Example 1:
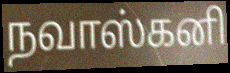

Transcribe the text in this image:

நவாஸ்கனி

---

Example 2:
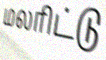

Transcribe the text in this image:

மலரிட்டு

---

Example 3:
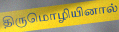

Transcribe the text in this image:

திருமொழியினால்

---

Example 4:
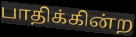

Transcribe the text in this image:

பாதிக்கின்ற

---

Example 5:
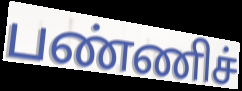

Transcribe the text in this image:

பண்ணிச்